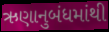
ઋણાનુબંધમાંથી